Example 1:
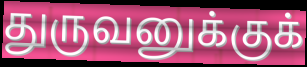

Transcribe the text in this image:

துருவனுக்குக்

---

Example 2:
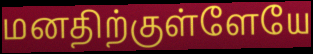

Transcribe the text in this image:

மனதிற்குள்ளேயே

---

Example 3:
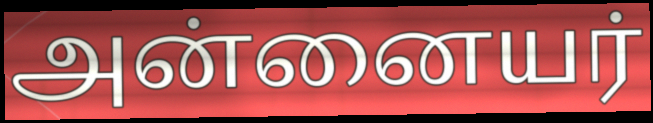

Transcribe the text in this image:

அன்னையர்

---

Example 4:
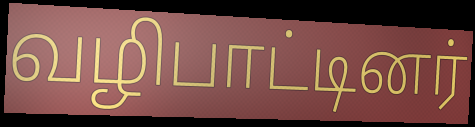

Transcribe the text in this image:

வழிபாட்டினர்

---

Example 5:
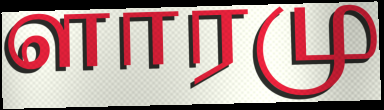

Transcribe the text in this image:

ளாரமு